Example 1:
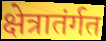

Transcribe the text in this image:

क्षेत्रातंर्गत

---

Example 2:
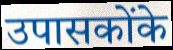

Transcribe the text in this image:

उपासकोंके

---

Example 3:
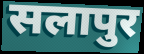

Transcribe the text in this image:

सलापुर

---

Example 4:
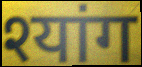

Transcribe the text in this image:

श्यांग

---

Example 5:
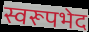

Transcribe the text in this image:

स्वरूपभेद